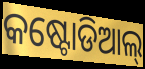
କଷ୍ଟୋଡିଆଲ୍